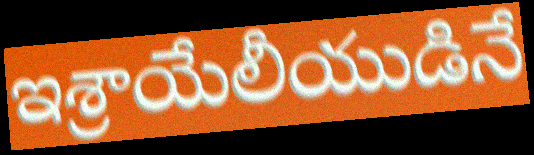
ఇశ్రాయేలీయుడినే